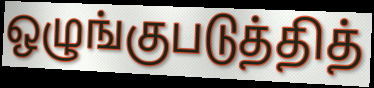
ஒழுங்குபடுத்தித்